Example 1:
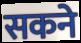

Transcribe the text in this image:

सकने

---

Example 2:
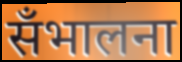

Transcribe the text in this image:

सँभालना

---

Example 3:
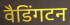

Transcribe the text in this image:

वैडिंगटन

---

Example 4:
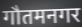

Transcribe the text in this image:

गौतमनगर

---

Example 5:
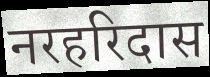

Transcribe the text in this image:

नरहरिदास